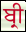
ਬ੍ਰੀ